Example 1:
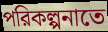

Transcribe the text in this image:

পরিকল্পনাতে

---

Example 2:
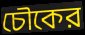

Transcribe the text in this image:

চৌকের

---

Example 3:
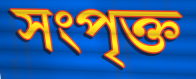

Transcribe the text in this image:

সংপৃক্ত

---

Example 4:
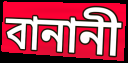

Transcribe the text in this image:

বানানী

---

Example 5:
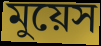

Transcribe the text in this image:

মুয়েস